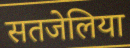
सतजेलिया